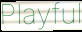
Playful